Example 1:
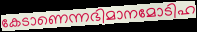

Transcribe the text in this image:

കേടാണെന്നഭിമാനമോടിഹ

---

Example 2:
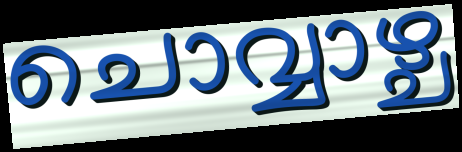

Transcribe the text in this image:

ചൊവ്വാഴ്ച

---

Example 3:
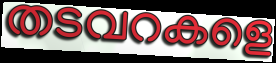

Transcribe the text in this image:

തടവറകളെ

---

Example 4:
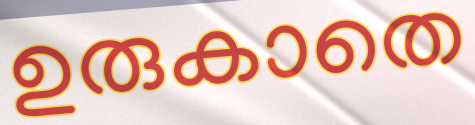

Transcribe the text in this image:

ഉരുകാതെ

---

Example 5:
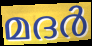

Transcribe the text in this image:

മദർ